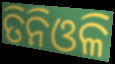
ତିନିଓଳି